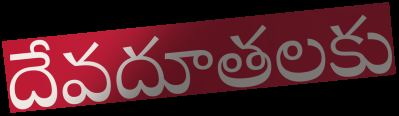
దేవదూతలకు